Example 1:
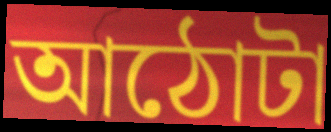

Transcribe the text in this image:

আঠোটা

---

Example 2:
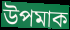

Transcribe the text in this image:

উপমাক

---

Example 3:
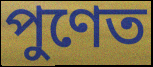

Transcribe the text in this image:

পুণেত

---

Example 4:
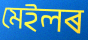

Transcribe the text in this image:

মেইলৰ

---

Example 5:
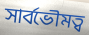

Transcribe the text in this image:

সাৰ্বভৌমত্ব